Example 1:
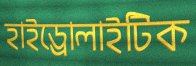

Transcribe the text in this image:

হাইড্রোলাইটিক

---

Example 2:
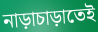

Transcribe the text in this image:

নাড়াচাড়াতেই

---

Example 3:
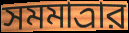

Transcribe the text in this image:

সমমাত্রার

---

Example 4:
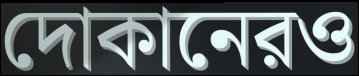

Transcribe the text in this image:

দোকানেরও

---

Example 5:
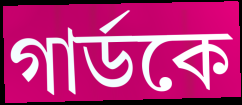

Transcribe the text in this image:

গার্ডকে